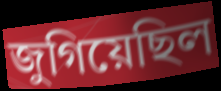
জুগিয়েছিল